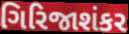
ગિરિજાશંકર